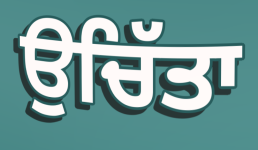
ਉਚਿੱਤਾ